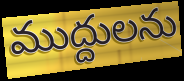
ముద్దులను